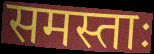
समस्ताः